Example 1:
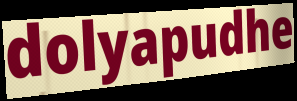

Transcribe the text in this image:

dolyapudhe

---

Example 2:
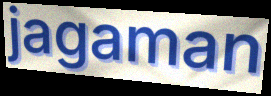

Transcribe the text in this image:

jagaman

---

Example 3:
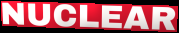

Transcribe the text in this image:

NUCLEAR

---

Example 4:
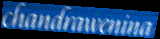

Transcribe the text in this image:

chandrawenina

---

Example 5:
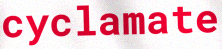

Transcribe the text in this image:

cyclamate